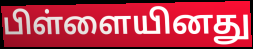
பிள்ளையினது